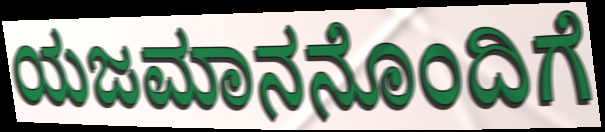
ಯಜಮಾನನೊಂದಿಗೆ